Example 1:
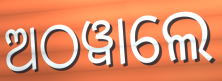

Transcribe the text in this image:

ଅଠୱାଲେ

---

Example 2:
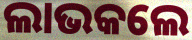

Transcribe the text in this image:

ଲାଭକଲେ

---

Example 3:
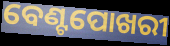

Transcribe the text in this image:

ବେଣ୍ଟପୋଖରୀ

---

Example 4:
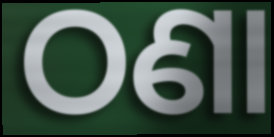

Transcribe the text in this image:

ଠଣା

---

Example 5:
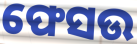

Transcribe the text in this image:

ଫେସଉ